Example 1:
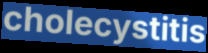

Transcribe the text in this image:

cholecystitis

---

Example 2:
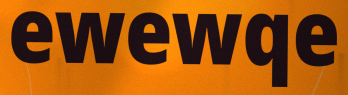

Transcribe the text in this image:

ewewqe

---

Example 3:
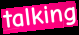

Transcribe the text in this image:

talking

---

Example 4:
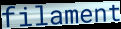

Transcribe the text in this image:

filament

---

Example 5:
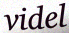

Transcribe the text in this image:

videl